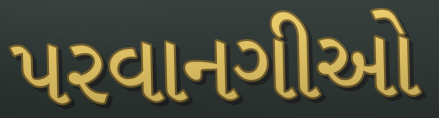
પરવાનગીઓ